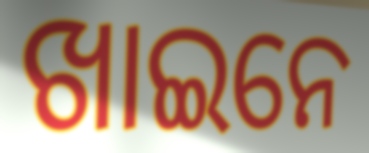
ଖାଇନେ